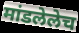
मांडलेलेच